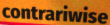
contrariwise